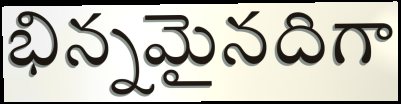
భిన్నమైనదిగా